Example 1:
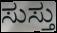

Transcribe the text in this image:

ಸುಸ್ತು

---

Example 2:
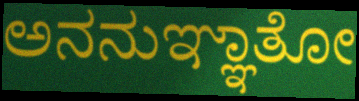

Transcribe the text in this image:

ಅನನುಞ್ಞಾತೋ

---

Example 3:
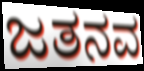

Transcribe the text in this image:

ಜತನವ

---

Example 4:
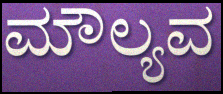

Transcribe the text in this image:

ಮೌಲ್ಯವ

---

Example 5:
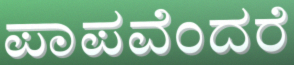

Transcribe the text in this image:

ಪಾಪವೆಂದರೆ